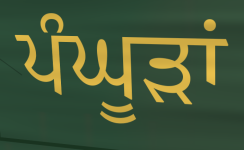
ਪੰਘੂੜਾਂ